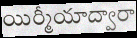
యిర్మీయాద్వారా